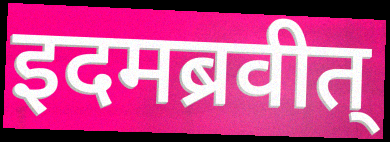
इदमब्रवीत्